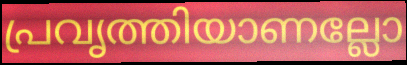
പ്രവൃത്തിയാണല്ലോ